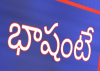
భాషంటే